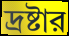
দ্রষ্টার